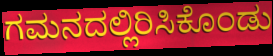
ಗಮನದಲ್ಲಿರಿಸಿಕೊಂಡು